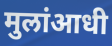
मुलांआधी